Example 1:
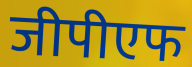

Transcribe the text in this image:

जीपीएफ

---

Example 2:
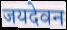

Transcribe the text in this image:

जयदेवन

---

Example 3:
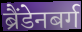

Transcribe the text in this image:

ब्रैंडेनबर्ग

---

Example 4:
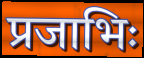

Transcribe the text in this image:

प्रजाभिः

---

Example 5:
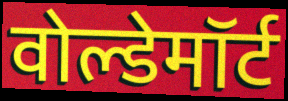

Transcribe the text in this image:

वोल्डेमॉर्ट